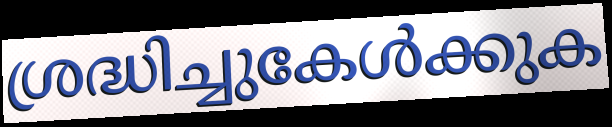
ശ്രദ്ധിച്ചുകേൾക്കുക